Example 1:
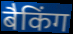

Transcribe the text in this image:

बैकिंग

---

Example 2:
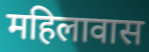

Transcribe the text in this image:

महिलावास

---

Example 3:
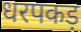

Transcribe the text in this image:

धरपकड़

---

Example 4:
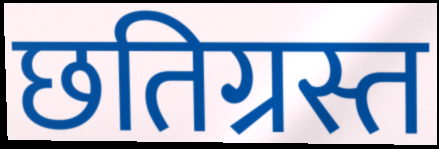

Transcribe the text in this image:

छतिग्रस्त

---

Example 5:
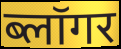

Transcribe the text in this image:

ब्लॉगर